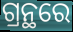
ଗ୍ରନ୍ଥରେ